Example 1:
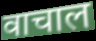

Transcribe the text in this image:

वाचाल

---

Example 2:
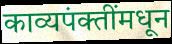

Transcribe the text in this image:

काव्यपंक्तींमधून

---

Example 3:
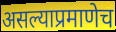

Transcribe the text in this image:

असल्याप्रमाणेच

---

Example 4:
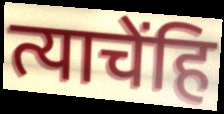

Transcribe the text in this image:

त्याचेंहि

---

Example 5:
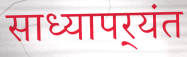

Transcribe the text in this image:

साध्यापर्यंत